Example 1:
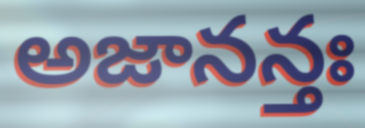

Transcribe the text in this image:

అజానన్తః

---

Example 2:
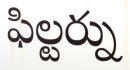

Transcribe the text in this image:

ఫిల్టర్ను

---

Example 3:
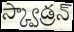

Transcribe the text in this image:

స్క్వాడ్రన్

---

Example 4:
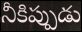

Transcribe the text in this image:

నీకిప్పుడు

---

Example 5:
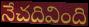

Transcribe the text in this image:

నేచదివింది